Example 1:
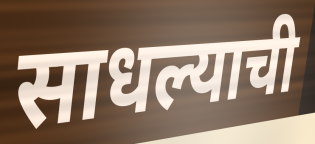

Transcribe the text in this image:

साधल्याची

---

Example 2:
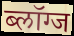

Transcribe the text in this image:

ब्लॉग्ज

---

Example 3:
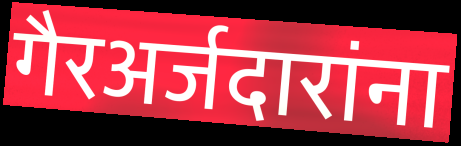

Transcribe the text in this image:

गैरअर्जदारांना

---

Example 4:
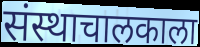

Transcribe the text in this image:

संस्थाचालकाला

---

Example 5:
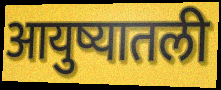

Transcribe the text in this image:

आयुष्यातली